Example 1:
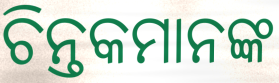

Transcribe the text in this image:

ଚିନ୍ତକମାନଙ୍କ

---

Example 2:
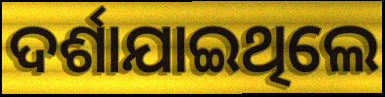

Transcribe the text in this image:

ଦର୍ଶାଯାଇଥିଲେ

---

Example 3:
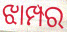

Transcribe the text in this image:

ଝାମ୍ପର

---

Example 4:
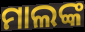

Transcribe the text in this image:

ମାଲଙ୍କ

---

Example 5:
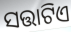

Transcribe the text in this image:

ସତ୍ତାଟିଏ